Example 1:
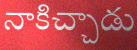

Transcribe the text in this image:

నాకిచ్చాడు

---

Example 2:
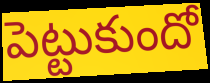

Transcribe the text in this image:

పెట్టుకుందో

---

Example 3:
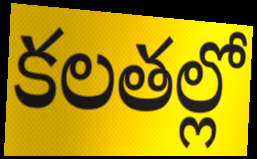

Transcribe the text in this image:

కలతల్లో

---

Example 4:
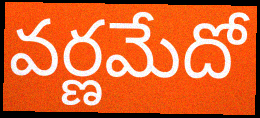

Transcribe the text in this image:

వర్ణమేదో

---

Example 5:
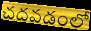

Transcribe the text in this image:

చదవడంలో